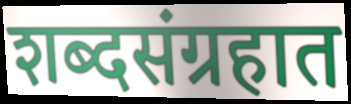
शब्दसंग्रहात